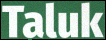
Taluk